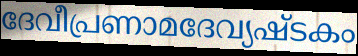
ദേവീപ്രണാമദേവ്യഷ്ടകം